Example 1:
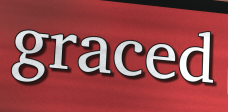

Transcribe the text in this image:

graced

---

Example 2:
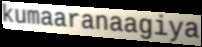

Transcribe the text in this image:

kumaaranaagiya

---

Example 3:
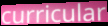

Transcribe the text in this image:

curricular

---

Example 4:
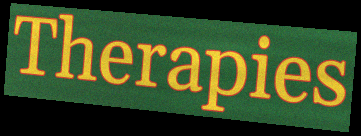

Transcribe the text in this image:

Therapies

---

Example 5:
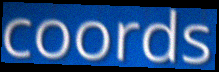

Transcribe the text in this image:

coords